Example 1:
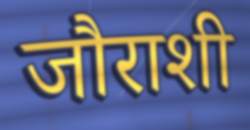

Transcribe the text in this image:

जौराशी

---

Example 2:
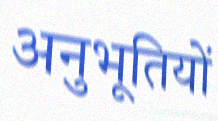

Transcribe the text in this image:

अनुभूतियों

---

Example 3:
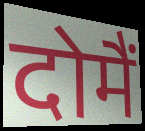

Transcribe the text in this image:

दोमैं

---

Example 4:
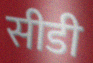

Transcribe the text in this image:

सीडी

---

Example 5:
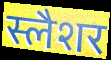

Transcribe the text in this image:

स्लैशर